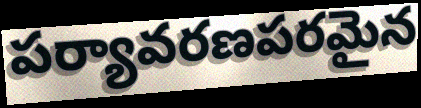
పర్యావరణపరమైన